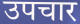
उपचार